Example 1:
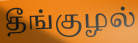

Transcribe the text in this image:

தீங்குழல்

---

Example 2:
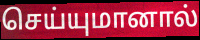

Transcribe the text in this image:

செய்யுமானால்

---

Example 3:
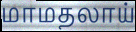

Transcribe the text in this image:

மாமதலாய்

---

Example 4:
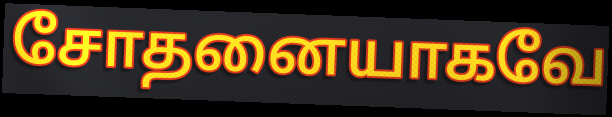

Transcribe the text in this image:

சோதனையாகவே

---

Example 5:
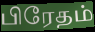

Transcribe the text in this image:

பிரேதம்